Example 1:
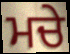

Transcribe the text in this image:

ਮਚੇ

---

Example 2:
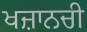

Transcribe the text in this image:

ਖਜ਼ਾਨਚੀ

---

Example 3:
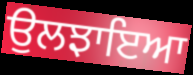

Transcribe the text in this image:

ਉਲਝਾਇਆ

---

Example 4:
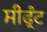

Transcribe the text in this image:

ਸੀਫ੍ਰੰਟ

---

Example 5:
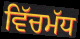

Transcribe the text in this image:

ਵਿੱਚਮੱਧ